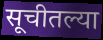
सूचीतल्या